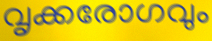
വൃക്കരോഗവും